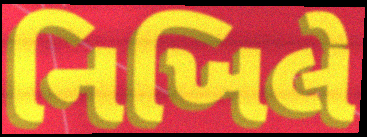
નિખિલે